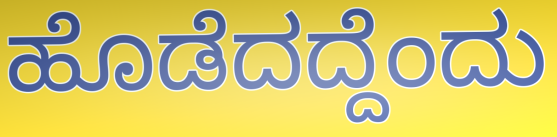
ಹೊಡೆದದ್ದೆಂದು